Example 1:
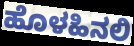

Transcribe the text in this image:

ಹೊಳಹಿನಲಿ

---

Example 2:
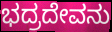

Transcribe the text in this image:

ಭದ್ರದೇವನು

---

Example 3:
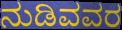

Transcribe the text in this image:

ನುಡಿವವರ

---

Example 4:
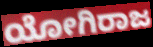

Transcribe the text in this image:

ಯೋಗಿರಾಜ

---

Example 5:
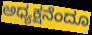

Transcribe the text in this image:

ಅಧ್ಯಕ್ಷನೆಂದೂ